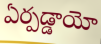
ఏర్పడ్డాయో